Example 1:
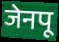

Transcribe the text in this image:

जेनपू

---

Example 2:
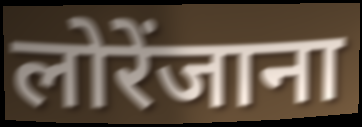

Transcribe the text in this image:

लोरेंजाना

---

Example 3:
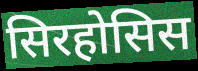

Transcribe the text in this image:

सिरहोसिस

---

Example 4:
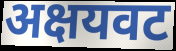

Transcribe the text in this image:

अक्षयवट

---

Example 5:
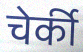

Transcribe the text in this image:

चेर्की